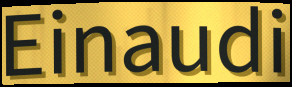
Einaudi